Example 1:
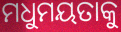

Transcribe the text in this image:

ମଧୁମୟତାକୁ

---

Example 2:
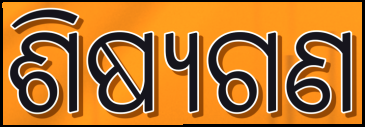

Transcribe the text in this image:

ଶିଷ୍ୟଗଣ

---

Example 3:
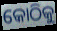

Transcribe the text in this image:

କୋଠିକୁ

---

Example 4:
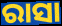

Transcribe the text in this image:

ରାସା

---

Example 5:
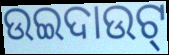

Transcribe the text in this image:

ଉଇଦାଉଟ୍